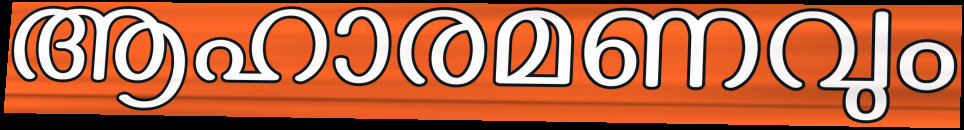
ആഹാരമണവും